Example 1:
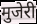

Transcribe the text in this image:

मुजेरी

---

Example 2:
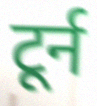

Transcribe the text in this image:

टूर्न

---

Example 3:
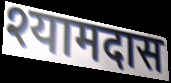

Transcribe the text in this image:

श्यामदास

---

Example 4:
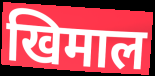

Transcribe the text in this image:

खिमाल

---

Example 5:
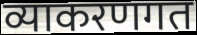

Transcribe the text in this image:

व्याकरणगत